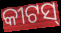
କୀଟସ୍